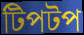
টিপটপ